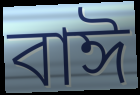
বাঈ